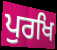
ਪੁਰਖਿ